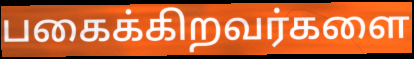
பகைக்கிறவர்களை